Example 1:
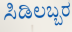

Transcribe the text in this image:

ಸಿಡಿಲಬ್ಬರ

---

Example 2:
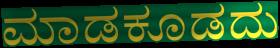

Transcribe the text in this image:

ಮಾಡಕೂಡದು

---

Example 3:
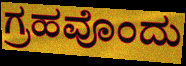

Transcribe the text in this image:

ಗ್ರಹವೊಂದು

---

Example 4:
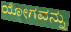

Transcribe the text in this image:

ಯೋಗವನ್ನು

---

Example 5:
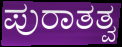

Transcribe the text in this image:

ಪುರಾತತ್ವ